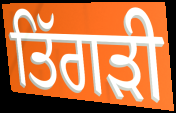
ਤਿੱਗੜੀ